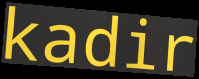
kadir